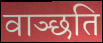
वाञ्छति